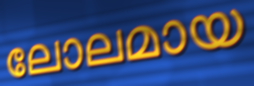
ലോലമായ